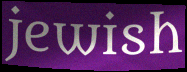
jewish